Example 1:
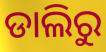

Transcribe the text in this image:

ଡାଲିରୁ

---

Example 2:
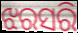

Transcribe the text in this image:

ଝରସରି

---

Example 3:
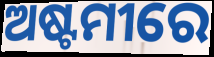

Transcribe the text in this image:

ଅଷ୍ଟମୀରେ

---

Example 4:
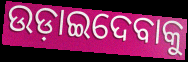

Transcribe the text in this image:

ଉଡ଼ାଇଦେବାକୁ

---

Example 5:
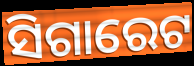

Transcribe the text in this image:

ସିଗାରେଟ